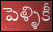
పెళ్ళికీ